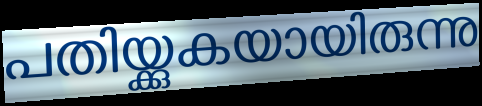
പതിയ്ക്കുകയായിരുന്നു